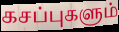
கசப்புகளும்